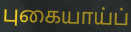
புகையாய்ப்